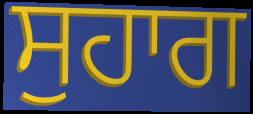
ਸੁਹਾਗ